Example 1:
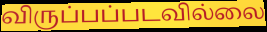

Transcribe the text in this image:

விருப்பப்படவில்லை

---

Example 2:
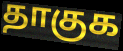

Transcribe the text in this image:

தாகுக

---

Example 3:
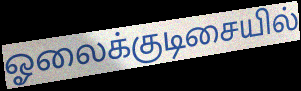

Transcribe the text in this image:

ஓலைக்குடிசையில்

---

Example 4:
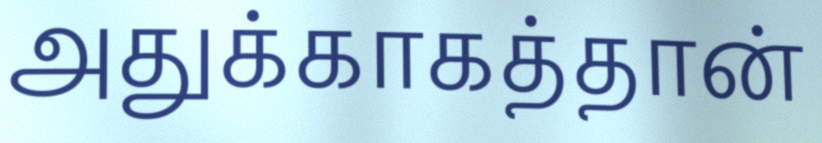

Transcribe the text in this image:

அதுக்காகத்தான்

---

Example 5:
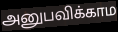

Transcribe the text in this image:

அனுபவிக்காம